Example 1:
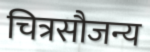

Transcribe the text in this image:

चित्रसौजन्य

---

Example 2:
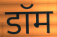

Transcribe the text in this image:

डॉम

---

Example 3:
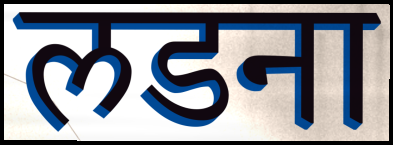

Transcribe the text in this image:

लडना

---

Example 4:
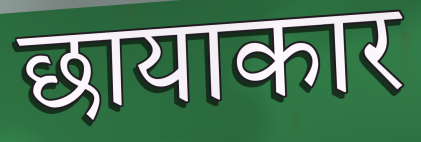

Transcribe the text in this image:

छायाकार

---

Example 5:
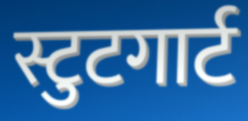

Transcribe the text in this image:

स्टुटगार्ट